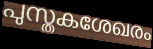
പുസ്തകശേഖരം